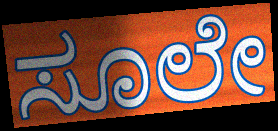
ಸೂಲೇ